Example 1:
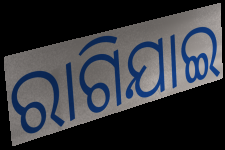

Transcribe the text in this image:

ରାଗିଯାଇ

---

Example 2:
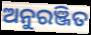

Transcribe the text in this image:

ଅନୁରଞ୍ଜିତ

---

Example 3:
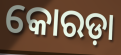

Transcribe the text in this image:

କୋରଡ଼ା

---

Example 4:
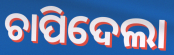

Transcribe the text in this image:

ଚାପିଦେଲା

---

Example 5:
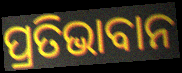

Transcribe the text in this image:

ପ୍ରତିଭାବାନ